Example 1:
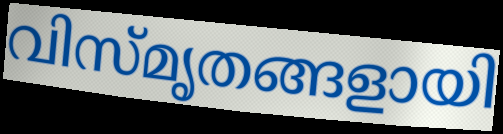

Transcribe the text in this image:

വിസ്മൃതങ്ങളായി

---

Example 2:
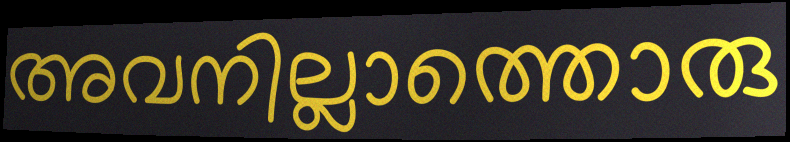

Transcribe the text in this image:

അവനില്ലാത്തൊരു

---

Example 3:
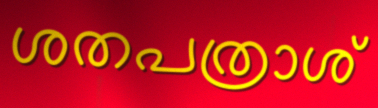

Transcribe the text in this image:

ശതപത്രാശ്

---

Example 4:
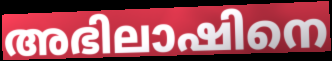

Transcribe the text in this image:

അഭിലാഷിനെ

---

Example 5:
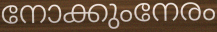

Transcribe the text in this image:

നോക്കുംനേരം